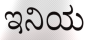
ಇನಿಯ